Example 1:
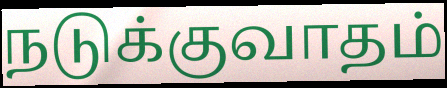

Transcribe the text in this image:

நடுக்குவாதம்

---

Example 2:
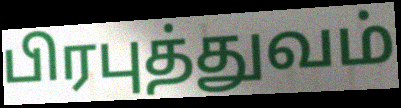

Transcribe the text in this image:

பிரபுத்துவம்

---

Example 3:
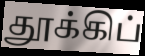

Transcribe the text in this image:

தூக்கிப்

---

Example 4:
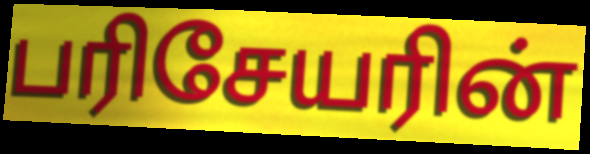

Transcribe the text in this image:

பரிசேயரின்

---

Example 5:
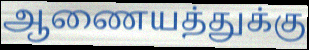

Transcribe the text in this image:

ஆணையத்துக்கு